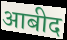
आबीद